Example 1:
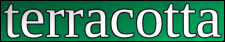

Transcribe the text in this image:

terracotta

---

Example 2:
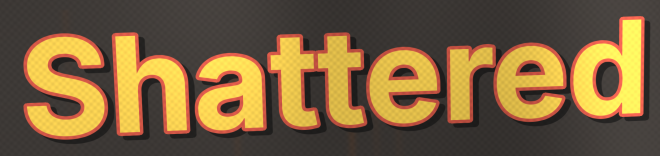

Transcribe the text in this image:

Shattered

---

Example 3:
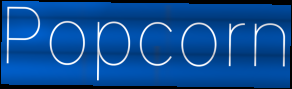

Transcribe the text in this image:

Popcorn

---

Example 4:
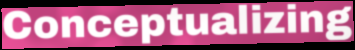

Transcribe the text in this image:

Conceptualizing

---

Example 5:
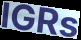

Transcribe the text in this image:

IGRs